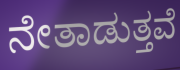
ನೇತಾಡುತ್ತವೆ